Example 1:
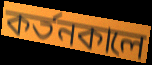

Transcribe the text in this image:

কর্তনকালে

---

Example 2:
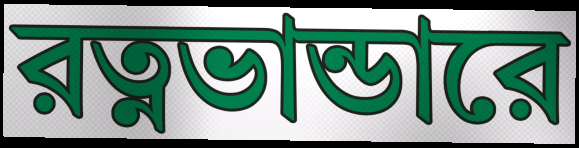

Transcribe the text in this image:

রত্নভান্ডারে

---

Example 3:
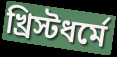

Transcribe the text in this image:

খ্রিস্টধর্মে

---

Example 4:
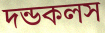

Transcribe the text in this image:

দন্ডকলস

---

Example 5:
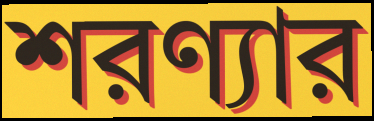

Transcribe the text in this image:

শরণ্যার